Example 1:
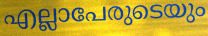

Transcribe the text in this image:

എല്ലാപേരുടെയും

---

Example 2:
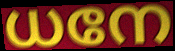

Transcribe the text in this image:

ധനേ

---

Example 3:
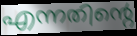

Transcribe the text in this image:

എന്നതിന്റെ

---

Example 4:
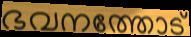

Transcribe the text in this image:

ഭവനത്തോട്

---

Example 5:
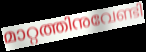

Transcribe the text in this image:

മാറ്റത്തിനുവേണ്ടി